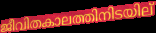
ജീവിതകാലത്തിനിടയില്